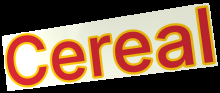
Cereal